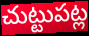
చుట్టుపట్ల